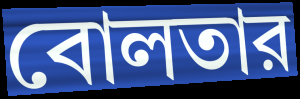
বোলতার